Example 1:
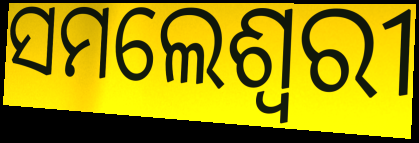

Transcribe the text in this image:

ସମଲେଶ୍ୱରୀ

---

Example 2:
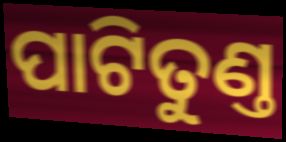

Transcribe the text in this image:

ପାଟିତୁଣ୍ତ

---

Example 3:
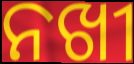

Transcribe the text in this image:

ନଖୀ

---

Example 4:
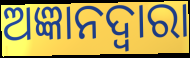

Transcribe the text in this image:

ଅଜ୍ଞାନଦ୍ଵାରା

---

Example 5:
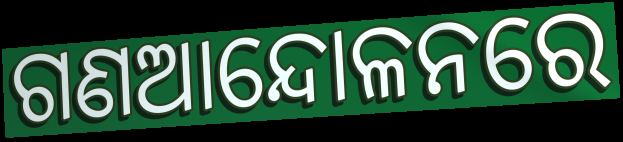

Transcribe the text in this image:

ଗଣଆନ୍ଦୋଳନରେ